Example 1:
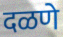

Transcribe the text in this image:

दळणे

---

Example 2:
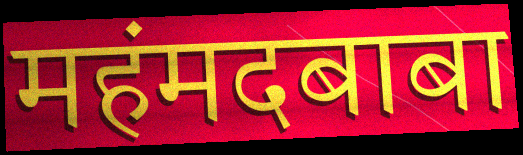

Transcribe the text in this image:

महंमदबाबा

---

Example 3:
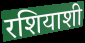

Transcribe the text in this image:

रशियाशी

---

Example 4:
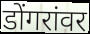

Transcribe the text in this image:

डोंगरांवर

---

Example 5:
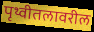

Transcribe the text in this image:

पृथ्वीतलावरील